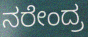
ನರೇಂದ್ರ